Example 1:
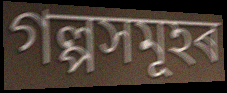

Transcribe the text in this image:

গল্পসমূহৰ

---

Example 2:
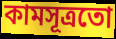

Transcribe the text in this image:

কামসূত্ৰতো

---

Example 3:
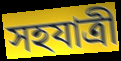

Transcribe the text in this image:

সহযাত্ৰী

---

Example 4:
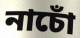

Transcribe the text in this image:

নাচোঁ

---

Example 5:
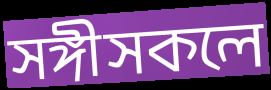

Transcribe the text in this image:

সঙ্গীসকলে